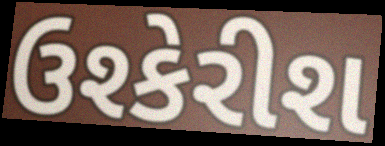
ઉશ્કેરીશ